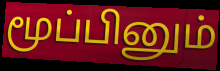
மூப்பினும்